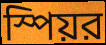
স্পিয়র